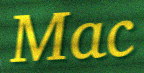
Mac